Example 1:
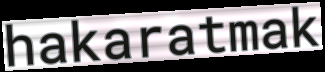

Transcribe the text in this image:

hakaratmak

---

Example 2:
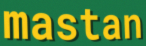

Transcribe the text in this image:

mastan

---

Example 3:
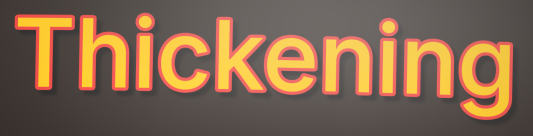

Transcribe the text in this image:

Thickening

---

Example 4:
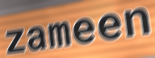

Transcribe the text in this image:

zameen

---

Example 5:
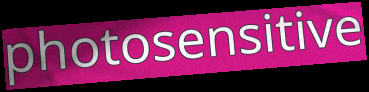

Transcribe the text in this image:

photosensitive